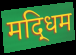
मद्धिम